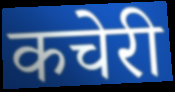
कचेरी